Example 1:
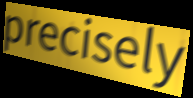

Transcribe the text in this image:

precisely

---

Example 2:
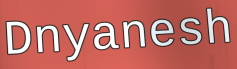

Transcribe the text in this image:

Dnyanesh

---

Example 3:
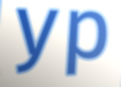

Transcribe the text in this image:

yp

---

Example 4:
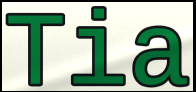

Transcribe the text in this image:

Tia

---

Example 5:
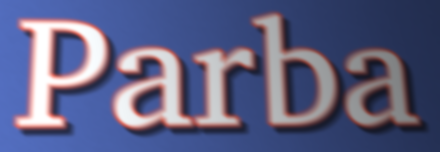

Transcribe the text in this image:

Parba